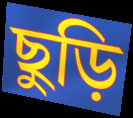
ছুড়ি